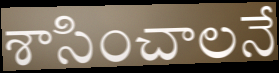
శాసించాలనే